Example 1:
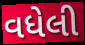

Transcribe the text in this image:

વધેલી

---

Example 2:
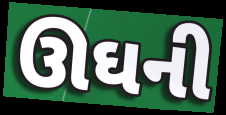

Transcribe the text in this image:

ઊઘની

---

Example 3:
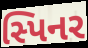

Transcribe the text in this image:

સ્પિનર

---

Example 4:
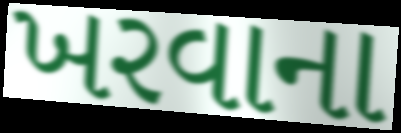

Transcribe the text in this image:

ખરવાના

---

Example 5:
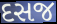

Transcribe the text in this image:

દસજ